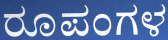
ರೂಪಂಗಳ